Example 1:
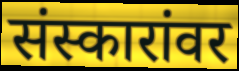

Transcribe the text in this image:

संस्कारांवर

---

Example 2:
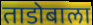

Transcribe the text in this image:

ताडोबाला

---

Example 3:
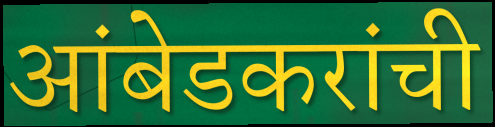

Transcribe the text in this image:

आंबेडकरांची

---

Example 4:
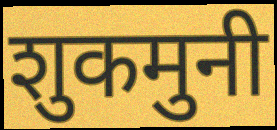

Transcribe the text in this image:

शुकमुनी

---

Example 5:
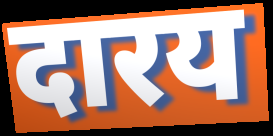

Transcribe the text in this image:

दारय